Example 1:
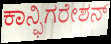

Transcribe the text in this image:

ಕಾನ್ಫಿಗರೇಶನ್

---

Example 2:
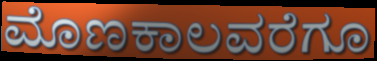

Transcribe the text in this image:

ಮೊಣಕಾಲವರೆಗೂ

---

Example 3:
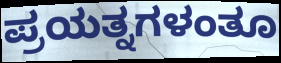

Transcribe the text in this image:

ಪ್ರಯತ್ನಗಳಂತೂ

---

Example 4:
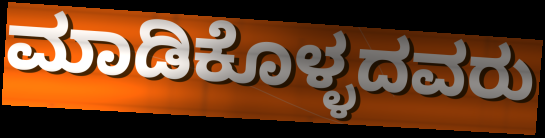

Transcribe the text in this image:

ಮಾಡಿಕೊಳ್ಳದವರು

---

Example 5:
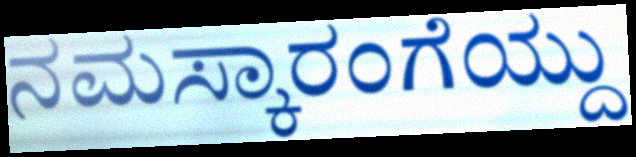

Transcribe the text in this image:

ನಮಸ್ಕಾರಂಗೆಯ್ದು